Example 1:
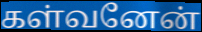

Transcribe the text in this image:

கள்வனேன்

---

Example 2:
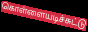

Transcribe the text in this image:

கொள்ளையடிச்சுட்டு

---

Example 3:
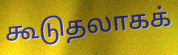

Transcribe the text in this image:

கூடுதலாகக்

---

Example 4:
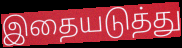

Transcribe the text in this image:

இதையடுத்து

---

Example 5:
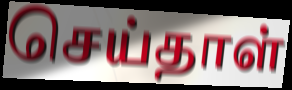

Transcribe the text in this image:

செய்தாள்